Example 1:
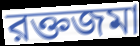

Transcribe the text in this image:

রক্তজমা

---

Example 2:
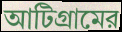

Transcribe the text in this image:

আটিগ্রামের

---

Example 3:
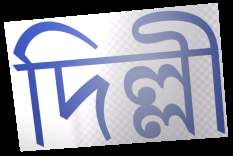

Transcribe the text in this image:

দিল্লী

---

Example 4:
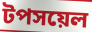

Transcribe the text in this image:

টপসয়েল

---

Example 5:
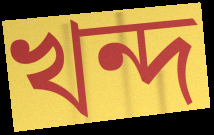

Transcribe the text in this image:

খন্দ